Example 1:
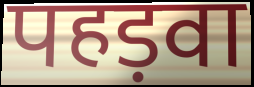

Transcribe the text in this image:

पहड़वा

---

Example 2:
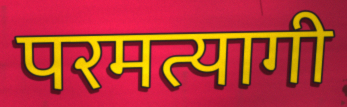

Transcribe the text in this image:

परमत्यागी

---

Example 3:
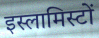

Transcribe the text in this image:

इस्लामिस्टों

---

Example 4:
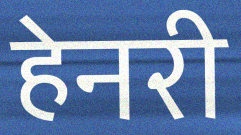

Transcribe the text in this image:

हेनरी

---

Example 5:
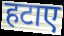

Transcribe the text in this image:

हटाए